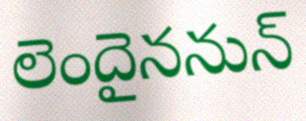
లెందైననున్